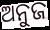
ଅନୁଜ